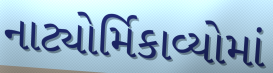
નાટ્યોર્મિકાવ્યોમાં